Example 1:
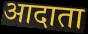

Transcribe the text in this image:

आदाता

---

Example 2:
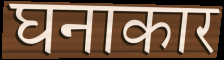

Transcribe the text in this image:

घनाकार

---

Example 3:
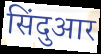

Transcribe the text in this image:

सिंदुआर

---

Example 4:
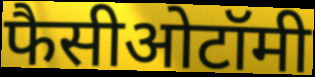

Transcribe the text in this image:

फैसीओटॉमी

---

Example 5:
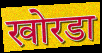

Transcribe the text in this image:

खोरडा